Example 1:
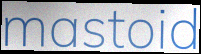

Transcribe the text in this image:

mastoid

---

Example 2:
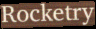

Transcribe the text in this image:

Rocketry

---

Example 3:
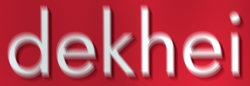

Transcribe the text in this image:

dekhei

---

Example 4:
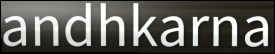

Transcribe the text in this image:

andhkarna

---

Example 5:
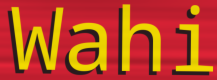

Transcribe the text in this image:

Wahi